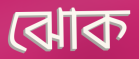
ঝোক